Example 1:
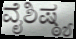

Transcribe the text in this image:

ವೈಶಿಷ್ಠ್ಯ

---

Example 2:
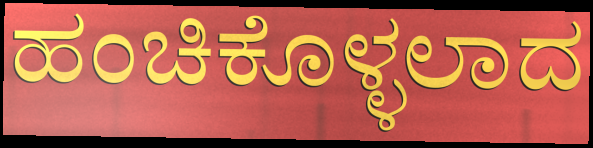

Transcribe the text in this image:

ಹಂಚಿಕೊಳ್ಳಲಾದ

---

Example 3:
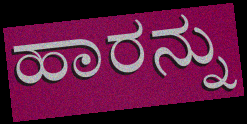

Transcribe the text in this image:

ಹಾರನ್ನು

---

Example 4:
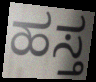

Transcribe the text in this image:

ಹಸ್ತ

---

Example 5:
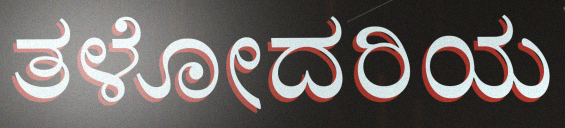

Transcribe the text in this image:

ತಳೋದರಿಯ